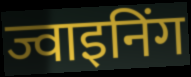
ज्वाइनिंग